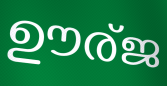
ഊര്ജ